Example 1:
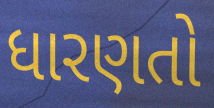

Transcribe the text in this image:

ધારણતો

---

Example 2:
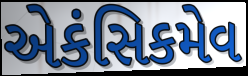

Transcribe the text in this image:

એકંસિકમેવ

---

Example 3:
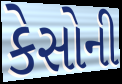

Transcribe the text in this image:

કેસોની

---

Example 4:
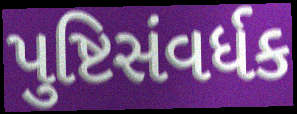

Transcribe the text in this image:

પુષ્ટિસંવર્ધક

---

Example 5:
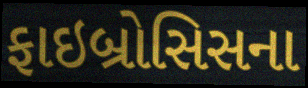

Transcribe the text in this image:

ફાઇબ્રોસિસના